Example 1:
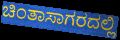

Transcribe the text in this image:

ಚಿಂತಾಸಾಗರದಲ್ಲಿ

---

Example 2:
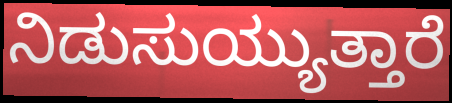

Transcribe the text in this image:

ನಿಡುಸುಯ್ಯುತ್ತಾರೆ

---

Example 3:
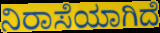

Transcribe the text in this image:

ನಿರಾಸೆಯಾಗಿದೆ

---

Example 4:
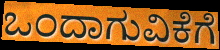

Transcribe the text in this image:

ಒಂದಾಗುವಿಕೆಗೆ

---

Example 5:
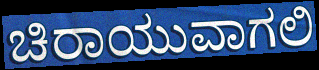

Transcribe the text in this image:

ಚಿರಾಯುವಾಗಲಿ